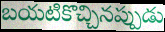
బయటికొచ్చినప్పుడు